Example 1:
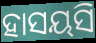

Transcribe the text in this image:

ହାସୟସି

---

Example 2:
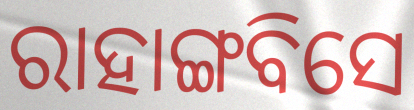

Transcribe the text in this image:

ରାହାଙ୍ଗବିସେ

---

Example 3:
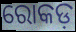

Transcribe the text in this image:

ରୋକଡ଼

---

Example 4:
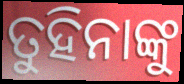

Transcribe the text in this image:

ତୁହିନାଙ୍କୁ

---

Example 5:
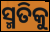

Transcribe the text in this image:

ସ୍ମତିକୁ